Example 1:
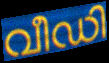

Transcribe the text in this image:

വീഡി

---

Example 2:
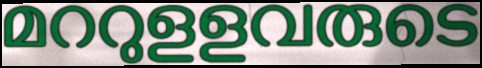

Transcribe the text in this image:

മററുളളവരുടെ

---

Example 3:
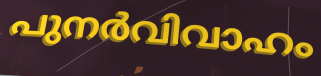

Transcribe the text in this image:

പുനർവിവാഹം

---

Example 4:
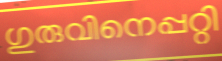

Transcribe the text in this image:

ഗുരുവിനെപ്പറ്റി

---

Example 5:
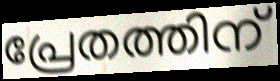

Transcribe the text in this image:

പ്രേതത്തിന്